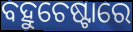
ବହୁଚେଷ୍ଟାରେ